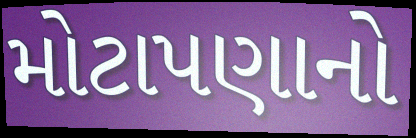
મોટાપણાનો